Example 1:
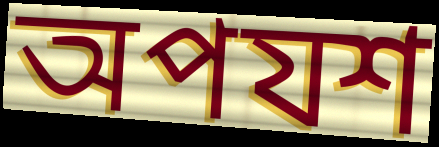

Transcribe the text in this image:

অপযশ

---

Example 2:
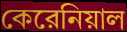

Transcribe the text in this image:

কেরেনিয়াল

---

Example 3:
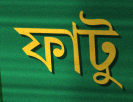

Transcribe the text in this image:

ফাটু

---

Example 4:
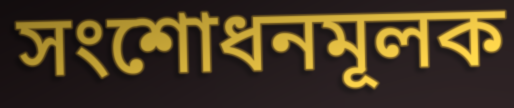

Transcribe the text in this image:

সংশোধনমূলক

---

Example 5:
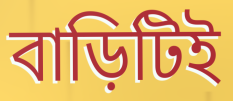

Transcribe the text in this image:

বাড়িটিই